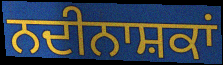
ਨਦੀਨਾਸ਼ਕਾਂ